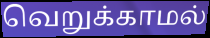
வெறுக்காமல்